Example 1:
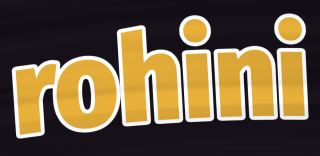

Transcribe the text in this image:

rohini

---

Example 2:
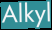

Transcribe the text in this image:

Alkyl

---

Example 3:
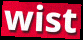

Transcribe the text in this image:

wist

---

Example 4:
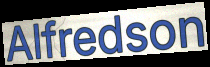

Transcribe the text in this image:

Alfredson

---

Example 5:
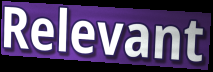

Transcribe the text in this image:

Relevant